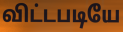
விட்டபடியே